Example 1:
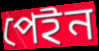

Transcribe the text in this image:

পেইন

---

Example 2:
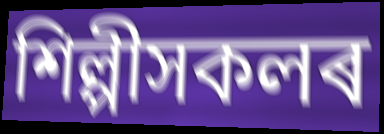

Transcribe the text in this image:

শিল্পীসকলৰ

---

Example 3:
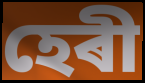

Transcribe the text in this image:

হেৰী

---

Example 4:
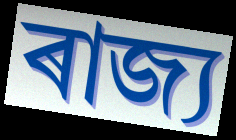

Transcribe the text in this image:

ৰাজ্য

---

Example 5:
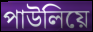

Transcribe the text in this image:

পাউলিয়ে